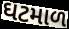
ઘટમાળ